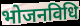
भोजनविधि